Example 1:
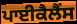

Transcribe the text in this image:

ਪਾਈਕੈਲੈਂਸ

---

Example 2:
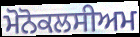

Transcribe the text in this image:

ਮੋਨੋਕਲਸੀਅਮ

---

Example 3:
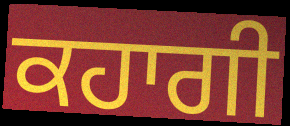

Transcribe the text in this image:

ਕਹਾਗੀ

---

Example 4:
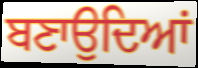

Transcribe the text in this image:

ਬਣਾਉਦਿਆਂ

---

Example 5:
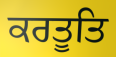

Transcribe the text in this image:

ਕਰਤੂਤਿ